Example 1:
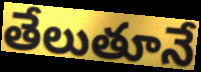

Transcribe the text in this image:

తేలుతూనే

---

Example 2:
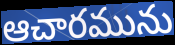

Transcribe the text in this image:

ఆచారమును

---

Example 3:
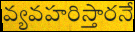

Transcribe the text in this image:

వ్యవహరిస్తారనే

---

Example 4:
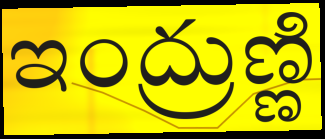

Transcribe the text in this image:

ఇంద్రుణ్ణి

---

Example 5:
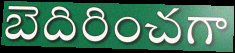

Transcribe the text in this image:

బెదిరించగా